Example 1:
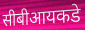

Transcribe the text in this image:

सीबीआयकडे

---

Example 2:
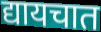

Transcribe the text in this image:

द्यायचात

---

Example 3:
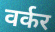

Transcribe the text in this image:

वर्कर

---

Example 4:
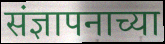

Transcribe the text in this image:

संज्ञापनाच्या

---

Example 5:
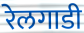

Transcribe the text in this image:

रेलगाडी